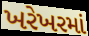
ખરેખરમાં